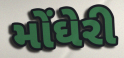
મોંઘેરી